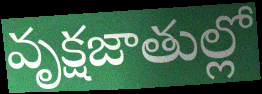
వృక్షజాతుల్లో